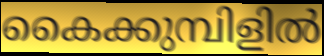
കൈക്കുമ്പിളിൽ